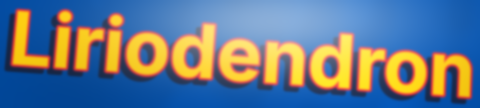
Liriodendron